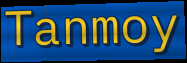
Tanmoy